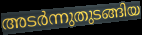
അടർന്നുതുടങ്ങിയ